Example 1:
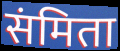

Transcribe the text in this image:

संमिता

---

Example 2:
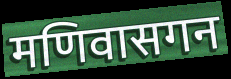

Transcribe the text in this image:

मणिवासगन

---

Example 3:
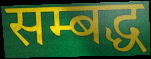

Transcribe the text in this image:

सम्बद्ध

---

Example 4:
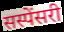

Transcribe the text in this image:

सस्पेंसरी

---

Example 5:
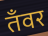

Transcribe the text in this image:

तँवर